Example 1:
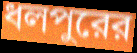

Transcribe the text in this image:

ধলপুরের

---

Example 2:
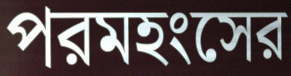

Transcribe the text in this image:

পরমহংসের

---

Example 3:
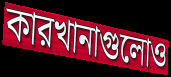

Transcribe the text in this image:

কারখানাগুলোও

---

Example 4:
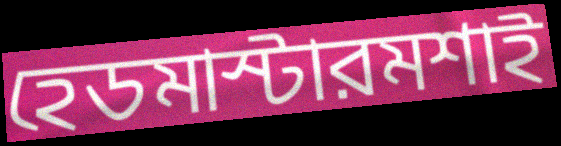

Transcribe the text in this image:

হেডমাস্টারমশাই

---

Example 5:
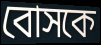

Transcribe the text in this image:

বোসকে